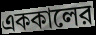
এককালের